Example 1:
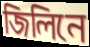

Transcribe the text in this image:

জিলিনে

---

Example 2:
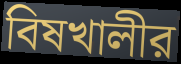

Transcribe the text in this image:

বিষখালীর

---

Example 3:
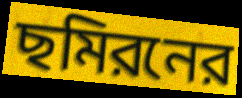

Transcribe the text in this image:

ছমিরনের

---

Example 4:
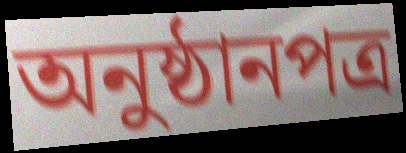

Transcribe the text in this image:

অনুষ্ঠানপত্র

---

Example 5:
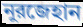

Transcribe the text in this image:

নুরজেহান